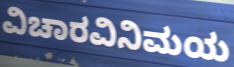
ವಿಚಾರವಿನಿಮಯ